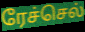
ரேச்செல்